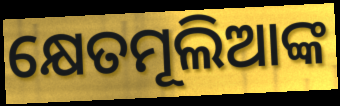
କ୍ଷେତମୂଲିଆଙ୍କ